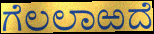
ಗೆಲಲಾಱದೆ